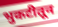
भुकटीतून